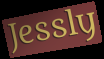
Jessly